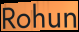
Rohun